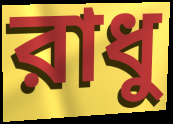
রাধু